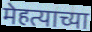
मेहत्याच्या